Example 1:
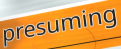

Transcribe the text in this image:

presuming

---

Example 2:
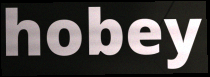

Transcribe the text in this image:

hobey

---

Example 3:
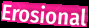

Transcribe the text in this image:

Erosional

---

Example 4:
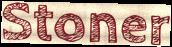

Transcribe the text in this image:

Stoner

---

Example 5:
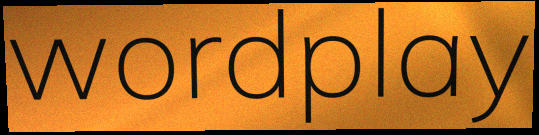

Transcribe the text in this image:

wordplay